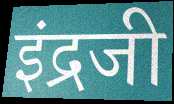
इंद्रजी